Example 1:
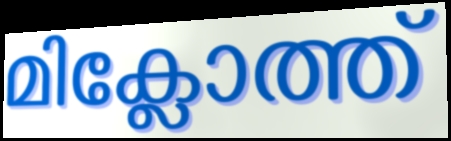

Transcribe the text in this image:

മിക്ലോത്ത്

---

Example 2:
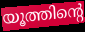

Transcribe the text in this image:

യൂത്തിന്റെ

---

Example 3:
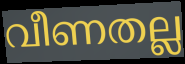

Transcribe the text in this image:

വീണതല്ല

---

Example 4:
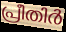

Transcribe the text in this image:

പ്രീതിർ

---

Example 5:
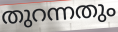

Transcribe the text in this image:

തുറന്നതും